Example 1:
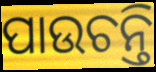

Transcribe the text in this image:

ପାଉଚନ୍ତି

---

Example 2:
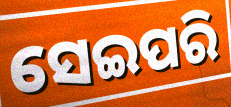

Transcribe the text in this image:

ସେଇପରି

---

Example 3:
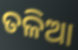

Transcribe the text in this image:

ତଳିଆ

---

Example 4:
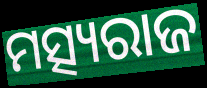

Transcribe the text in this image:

ମତ୍ସ୍ୟରାଜ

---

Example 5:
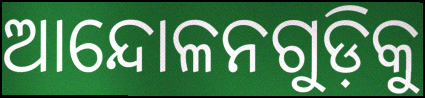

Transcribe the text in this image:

ଆନ୍ଦୋଳନଗୁଡ଼ିକୁ